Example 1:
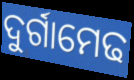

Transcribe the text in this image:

ଦୁର୍ଗାମେଢ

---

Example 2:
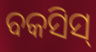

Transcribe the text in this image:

ବକସିସ୍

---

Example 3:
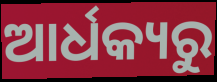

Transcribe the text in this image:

ଆର୍ଧକ୍ୟରୁ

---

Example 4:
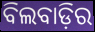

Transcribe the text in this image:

ବିଲବାଡ଼ିର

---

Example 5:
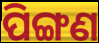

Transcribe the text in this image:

ପିଙ୍ଗଣ